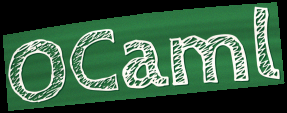
OCaml